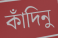
কাঁদিনু